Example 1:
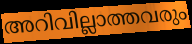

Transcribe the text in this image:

അറിവില്ലാത്തവരും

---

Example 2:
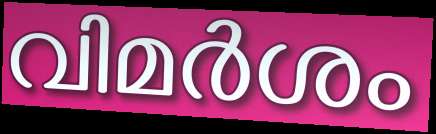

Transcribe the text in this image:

വിമർശം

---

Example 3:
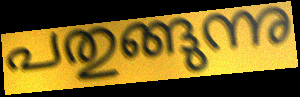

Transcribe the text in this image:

പതുങ്ങുന്നു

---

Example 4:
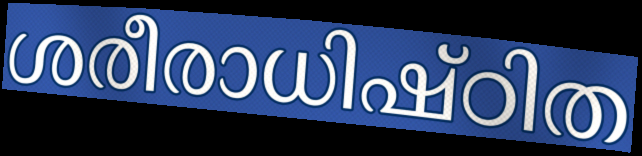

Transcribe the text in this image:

ശരീരാധിഷ്ഠിത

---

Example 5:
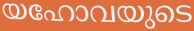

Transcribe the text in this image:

യഹോവയുടെ